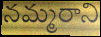
నమ్మరాని